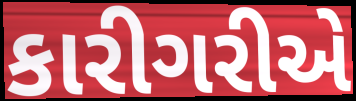
કારીગરીએ